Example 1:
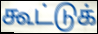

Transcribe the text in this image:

கூட்டுக்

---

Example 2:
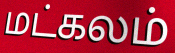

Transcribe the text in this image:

மட்கலம்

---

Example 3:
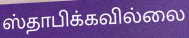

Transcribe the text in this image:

ஸ்தாபிக்கவில்லை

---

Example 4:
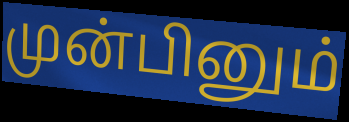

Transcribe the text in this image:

முன்பினும்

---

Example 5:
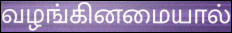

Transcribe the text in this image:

வழங்கினமையால்